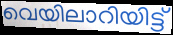
വെയിലാറിയിട്ട്